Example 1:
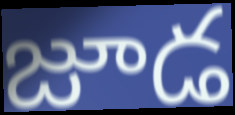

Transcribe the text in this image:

జూడ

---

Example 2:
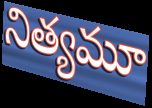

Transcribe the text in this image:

నిత్యమూ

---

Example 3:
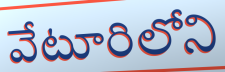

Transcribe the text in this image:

వేటూరిలోని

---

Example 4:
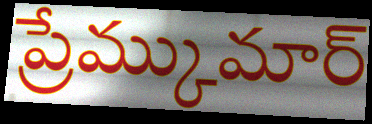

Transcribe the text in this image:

ప్రేమ్కుమార్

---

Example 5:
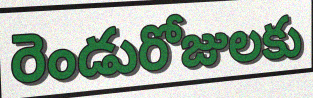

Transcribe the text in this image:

రెండురోజులకు